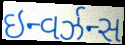
ઇન્વર્ઝન્સ